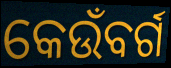
କେଉଁବର୍ଗ